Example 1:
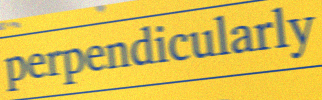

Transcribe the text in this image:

perpendicularly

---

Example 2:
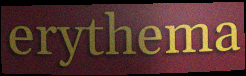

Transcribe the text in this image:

erythema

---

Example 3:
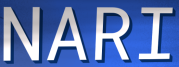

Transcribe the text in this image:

NARI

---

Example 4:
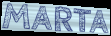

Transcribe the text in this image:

MARTA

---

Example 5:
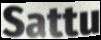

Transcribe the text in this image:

Sattu